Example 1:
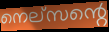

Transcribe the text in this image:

നെല്സന്റെ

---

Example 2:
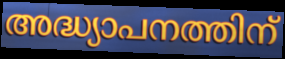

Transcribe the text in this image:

അദ്ധ്യാപനത്തിന്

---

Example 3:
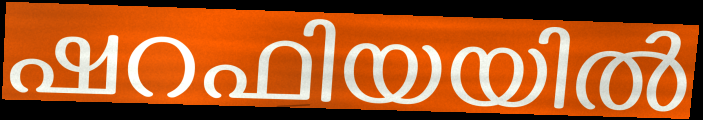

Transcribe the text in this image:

ഷറഫിയയിൽ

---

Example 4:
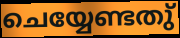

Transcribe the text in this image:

ചെയ്യേണ്ടതു്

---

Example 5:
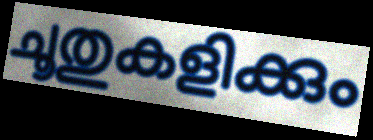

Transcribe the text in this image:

ചൂതുകളിക്കും